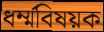
ধর্ম্মবিষয়ক